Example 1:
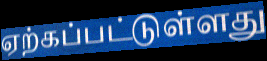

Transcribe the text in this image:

ஏற்கப்பட்டுள்ளது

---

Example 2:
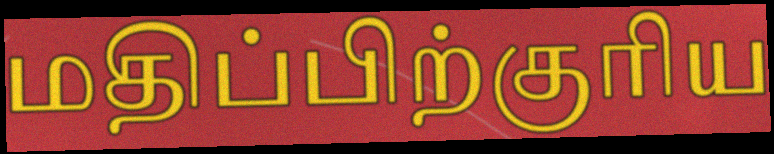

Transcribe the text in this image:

மதிப்பிற்குரிய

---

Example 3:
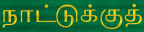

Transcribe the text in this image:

நாட்டுக்குத்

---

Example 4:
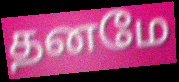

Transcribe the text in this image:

தனமே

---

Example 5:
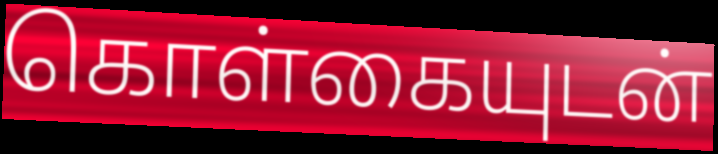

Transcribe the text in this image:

கொள்கையுடன்